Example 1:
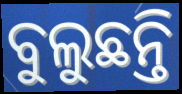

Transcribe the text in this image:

ବୁଲୁଛନ୍ତି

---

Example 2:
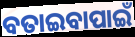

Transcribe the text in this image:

ବତାଇବାପାଇଁ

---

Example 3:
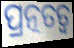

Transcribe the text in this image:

ପ୍ରତ୍ନତତ୍ୱ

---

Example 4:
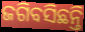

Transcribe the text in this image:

ଜଗିବସିଛନ୍ତି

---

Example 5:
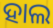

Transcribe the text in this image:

ହାଲ